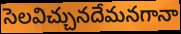
సెలవిచ్చునదేమనగానా